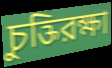
চুক্তিরক্ষা